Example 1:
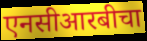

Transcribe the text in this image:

एनसीआरबीचा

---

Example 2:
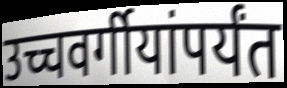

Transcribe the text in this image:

उच्चवर्गीयांपर्यंत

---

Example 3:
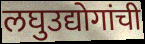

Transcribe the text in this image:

लघुउद्योगांची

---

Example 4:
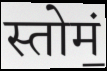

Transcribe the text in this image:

स्तोमं॒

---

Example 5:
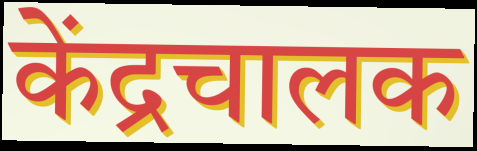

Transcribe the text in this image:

केंद्रचालक